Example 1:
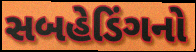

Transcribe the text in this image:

સબહેડિંગનો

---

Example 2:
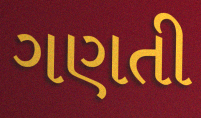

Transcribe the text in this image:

ગણતી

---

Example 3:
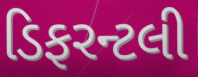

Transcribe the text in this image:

ડિફરન્ટલી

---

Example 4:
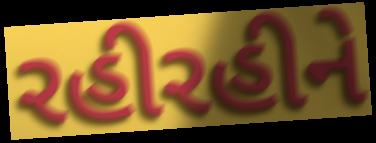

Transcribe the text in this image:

રહીરહીને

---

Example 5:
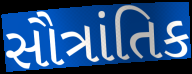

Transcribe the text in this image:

સૌત્રાંતિક